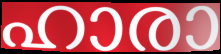
ഹാരാ